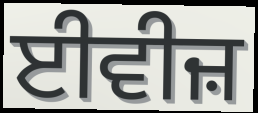
ਈਵੀਜ਼